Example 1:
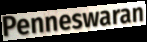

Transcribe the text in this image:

Penneswaran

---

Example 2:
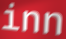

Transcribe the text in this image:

inn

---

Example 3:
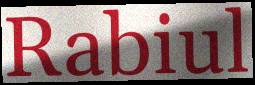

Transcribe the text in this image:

Rabiul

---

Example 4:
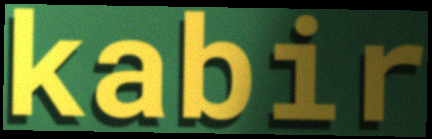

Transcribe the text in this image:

kabir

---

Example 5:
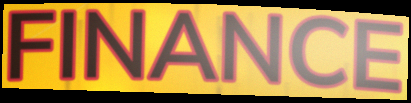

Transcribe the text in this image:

FINANCE